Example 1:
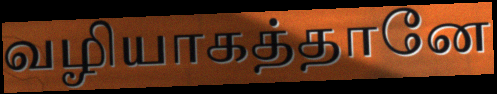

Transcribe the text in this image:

வழியாகத்தானே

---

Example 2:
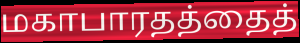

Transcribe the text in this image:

மகாபாரதத்தைத்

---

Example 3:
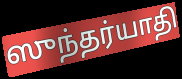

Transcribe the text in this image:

ஸுந்தர்யாதி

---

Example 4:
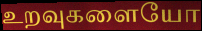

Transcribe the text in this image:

உறவுகளையோ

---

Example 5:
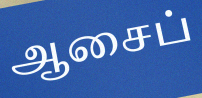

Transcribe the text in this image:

ஆசைப்